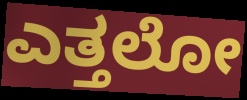
ಎತ್ತಲೋ